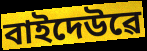
বাইদেউৱে